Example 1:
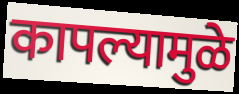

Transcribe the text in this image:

कापल्यामुळे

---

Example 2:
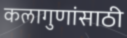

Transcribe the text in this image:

कलागुणांसाठी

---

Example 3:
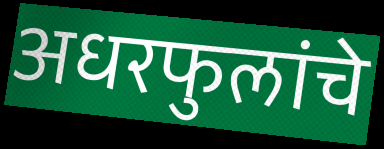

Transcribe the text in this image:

अधरफुलांचे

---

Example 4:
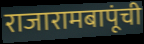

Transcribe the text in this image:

राजारामबापूंची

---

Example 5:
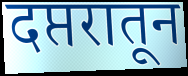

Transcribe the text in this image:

दप्तरातून